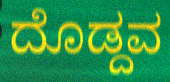
ದೊಡ್ದವ